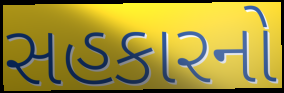
સહકારનો